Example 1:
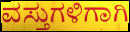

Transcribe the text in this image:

ವಸ್ತುಗಳಿಗಾಗಿ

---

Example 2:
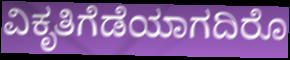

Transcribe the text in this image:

ವಿಕೃತಿಗೆಡೆಯಾಗದಿರೊ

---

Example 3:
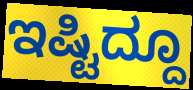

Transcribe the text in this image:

ಇಷ್ಟಿದ್ದೂ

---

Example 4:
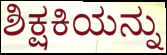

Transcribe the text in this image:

ಶಿಕ್ಷಕಿಯನ್ನು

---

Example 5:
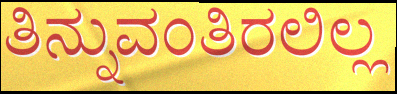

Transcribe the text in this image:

ತಿನ್ನುವಂತಿರಲಿಲ್ಲ